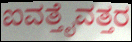
ಐವತ್ತೈವತ್ತರ